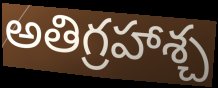
అతిగ్రహాశ్చ